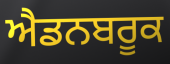
ਐਡਨਬਰੂਕ